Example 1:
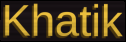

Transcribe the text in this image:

Khatik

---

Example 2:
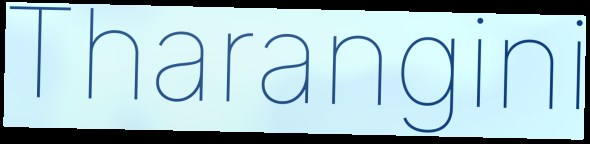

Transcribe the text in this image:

Tharangini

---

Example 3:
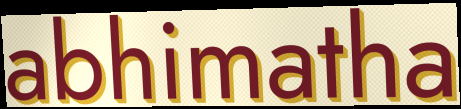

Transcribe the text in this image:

abhimatha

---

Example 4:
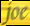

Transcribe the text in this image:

joe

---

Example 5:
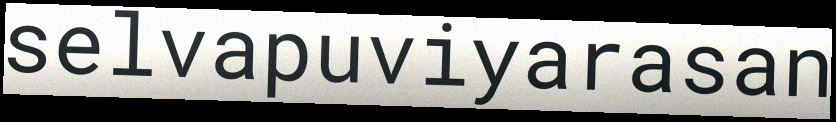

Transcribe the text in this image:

selvapuviyarasan